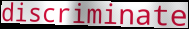
discriminate